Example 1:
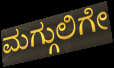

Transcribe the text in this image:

ಮಗ್ಗುಲಿಗೇ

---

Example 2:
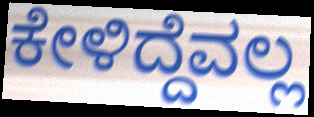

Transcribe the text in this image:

ಕೇಳಿದ್ದೆವಲ್ಲ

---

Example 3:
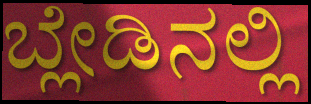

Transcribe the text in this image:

ಬ್ಲೇಡಿನಲ್ಲಿ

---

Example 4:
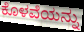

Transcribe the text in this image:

ಕೊಳವೆಯನ್ನು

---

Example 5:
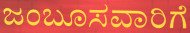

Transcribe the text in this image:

ಜಂಬೂಸವಾರಿಗೆ